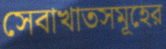
সেবাখাতসমূহের